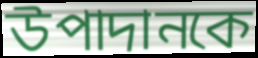
উপাদানকে